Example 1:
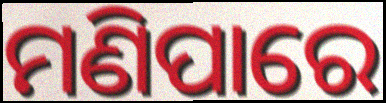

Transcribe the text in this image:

ମଣିପାରେ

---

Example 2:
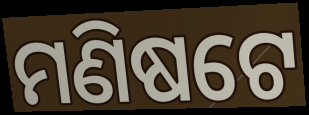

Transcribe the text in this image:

ମଣିଷଟେ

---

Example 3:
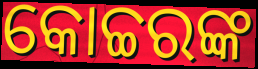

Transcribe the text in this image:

କୋଚ୍ଚରଙ୍କ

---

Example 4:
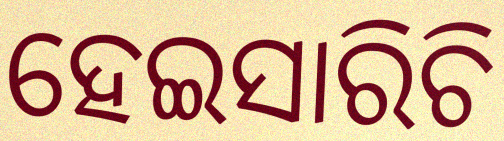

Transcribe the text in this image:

ହେଇସାରିଚି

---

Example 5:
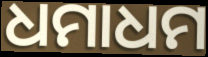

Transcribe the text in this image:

ଧମାଧମ